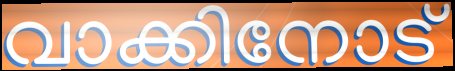
വാക്കിനോട്